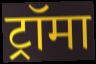
ट्रॉमा